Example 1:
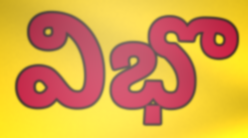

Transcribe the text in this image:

విభొ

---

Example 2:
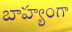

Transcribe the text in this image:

బాహ్యంగా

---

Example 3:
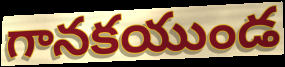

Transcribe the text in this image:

గానకయుండ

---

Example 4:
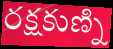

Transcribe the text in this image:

రక్షకుణ్ని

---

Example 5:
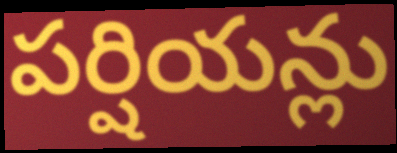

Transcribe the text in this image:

పర్షియన్లు